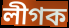
লীগক